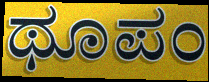
ಥೂಪಂ